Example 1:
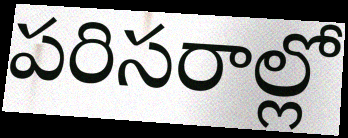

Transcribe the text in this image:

పరిసరాల్లో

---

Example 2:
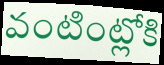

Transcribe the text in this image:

వంటింట్లోకి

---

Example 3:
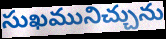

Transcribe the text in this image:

సుఖమునిచ్చును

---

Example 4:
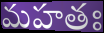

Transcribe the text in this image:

మహతః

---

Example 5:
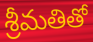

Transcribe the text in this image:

శ్రీమతితో